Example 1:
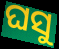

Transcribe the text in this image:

ଘସୁ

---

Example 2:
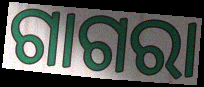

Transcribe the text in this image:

ଗାଗରା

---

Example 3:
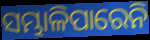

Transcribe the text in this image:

ସମ୍ଭାଳିପାରେନି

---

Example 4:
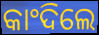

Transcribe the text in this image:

କାଂଦିଲେ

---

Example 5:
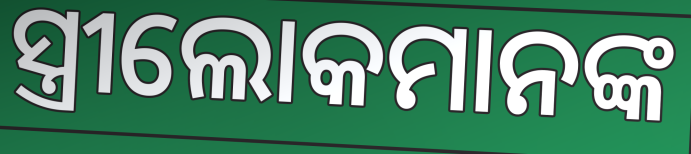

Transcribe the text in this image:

ସ୍ତ୍ରୀଲୋକମାନଙ୍କ